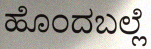
ಹೊಂದಬಲ್ಲೆ